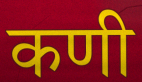
कणी